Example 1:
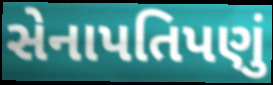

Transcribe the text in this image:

સેનાપતિપણું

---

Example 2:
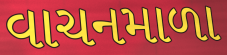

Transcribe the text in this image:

વાચનમાળા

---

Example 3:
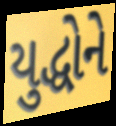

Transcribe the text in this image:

યુદ્ધોને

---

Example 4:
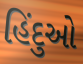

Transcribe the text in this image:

હિંદુઓ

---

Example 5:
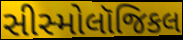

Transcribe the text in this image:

સીસ્મોલૉજિકલ